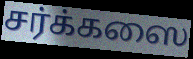
சர்க்கஸை